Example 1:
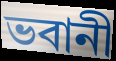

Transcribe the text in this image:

ভবানী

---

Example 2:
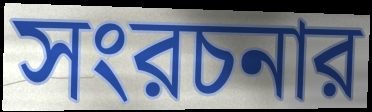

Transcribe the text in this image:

সংরচনার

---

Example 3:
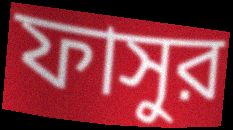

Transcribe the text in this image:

ফাসুর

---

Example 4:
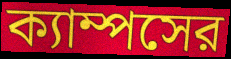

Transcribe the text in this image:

ক্যাম্পসের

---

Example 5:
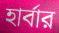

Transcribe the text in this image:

হার্বার